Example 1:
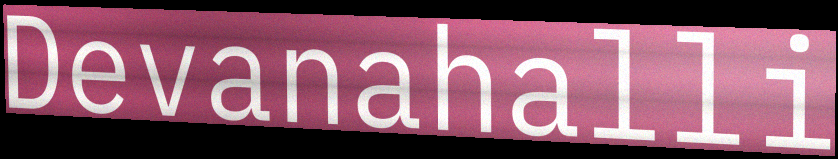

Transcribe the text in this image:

Devanahalli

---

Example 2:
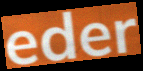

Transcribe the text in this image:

eder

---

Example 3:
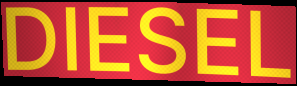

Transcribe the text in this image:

DIESEL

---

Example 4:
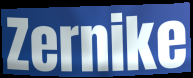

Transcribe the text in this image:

Zernike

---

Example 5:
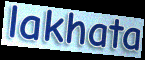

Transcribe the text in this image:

lakhata